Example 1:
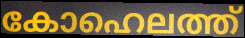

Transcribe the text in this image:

കോഹെലത്ത്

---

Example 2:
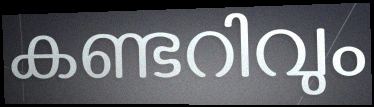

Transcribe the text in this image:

കണ്ടറിവും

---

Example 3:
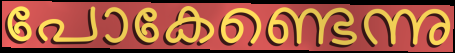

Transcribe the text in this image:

പോകേണ്ടെന്നു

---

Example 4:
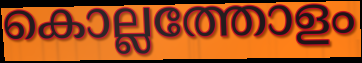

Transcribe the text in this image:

കൊല്ലത്തോളം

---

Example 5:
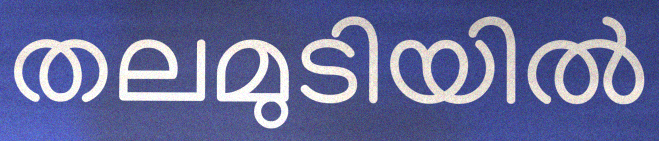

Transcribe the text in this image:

തലമുടിയിൽ